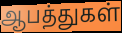
ஆபத்துகள்